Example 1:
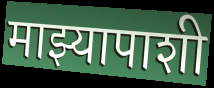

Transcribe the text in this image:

माझ्यापाशी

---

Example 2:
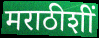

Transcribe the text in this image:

मराठीशीं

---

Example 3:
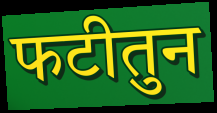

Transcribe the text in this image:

फटीतुन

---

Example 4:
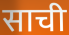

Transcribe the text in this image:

साची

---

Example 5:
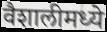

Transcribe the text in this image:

वैशालीमध्ये